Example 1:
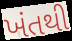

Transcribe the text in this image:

ખંતથી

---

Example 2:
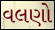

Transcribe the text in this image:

વલણો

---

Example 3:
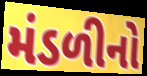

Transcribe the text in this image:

મંડળીનો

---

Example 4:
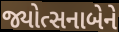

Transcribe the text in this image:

જ્યોત્સનાબેને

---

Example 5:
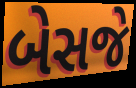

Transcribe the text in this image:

બેસજે